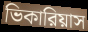
ভিকারিয়াস